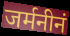
जर्मनीनं